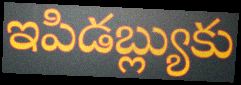
ఇపిడబ్ల్యుకు